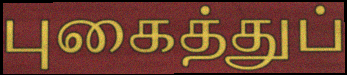
புகைத்துப்